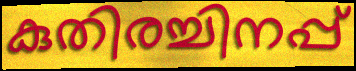
കുതിരച്ചിനപ്പ്